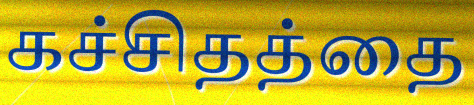
கச்சிதத்தை